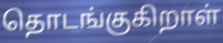
தொடங்குகிறாள்